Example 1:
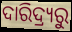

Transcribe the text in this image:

ଦାରିଦ୍ର୍ୟରୁ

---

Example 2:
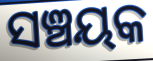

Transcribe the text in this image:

ସଞ୍ଚୟକ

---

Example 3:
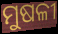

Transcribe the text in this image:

ମୁଷଳୀ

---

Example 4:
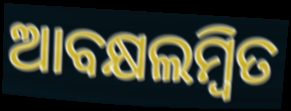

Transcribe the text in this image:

ଆବକ୍ଷଲମ୍ବିତ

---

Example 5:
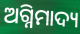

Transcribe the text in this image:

ଅଗ୍ନିମାଦ୍ୟ